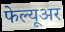
फेल्यूअर